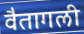
वैतागली